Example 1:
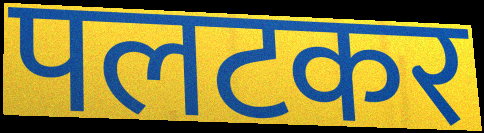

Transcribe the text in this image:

पलटकर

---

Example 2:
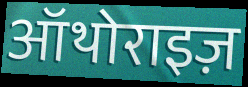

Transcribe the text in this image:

ऑथोराइज़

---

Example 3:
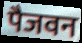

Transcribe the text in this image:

पैजवन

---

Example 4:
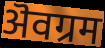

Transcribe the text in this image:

ऄवग्रम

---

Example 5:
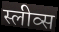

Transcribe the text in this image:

स्लीव्स